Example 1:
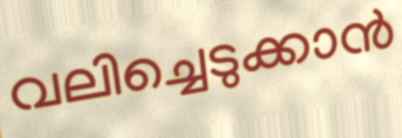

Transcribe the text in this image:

വലിച്ചെടുക്കാൻ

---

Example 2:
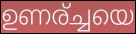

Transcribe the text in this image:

ഉണര്ച്ചയെ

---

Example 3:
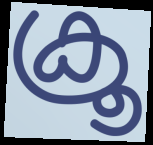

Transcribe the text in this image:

ക്രൂ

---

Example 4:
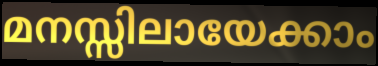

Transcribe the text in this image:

മനസ്സിലായേക്കാം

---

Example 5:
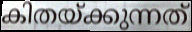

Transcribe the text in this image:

കിതയ്ക്കുന്നത്